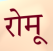
रोमू